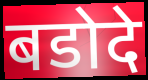
बडोदे